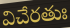
విచేరతుః